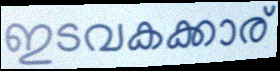
ഇടവകക്കാര്